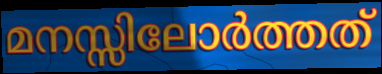
മനസ്സിലോർത്തത്